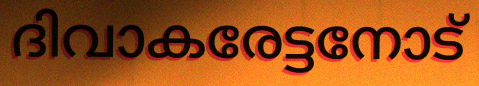
ദിവാകരേട്ടനോട്